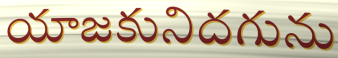
యాజకునిదగును